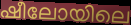
ഷീലോയിലെ